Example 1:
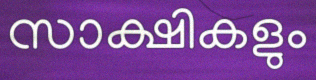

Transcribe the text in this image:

സാക്ഷികളും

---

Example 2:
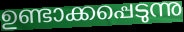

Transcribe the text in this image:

ഉണ്ടാക്കപ്പെടുന്നു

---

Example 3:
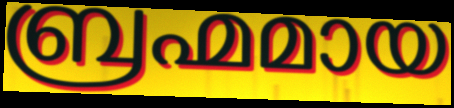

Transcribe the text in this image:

ബ്രഹ്മമായ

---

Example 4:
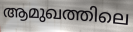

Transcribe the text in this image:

ആമുഖത്തിലെ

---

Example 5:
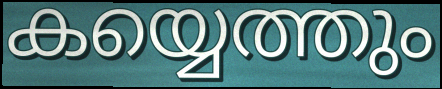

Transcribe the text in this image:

കയ്യെത്തും